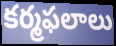
కర్మఫలాలు